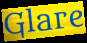
Glare